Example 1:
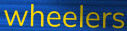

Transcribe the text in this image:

wheelers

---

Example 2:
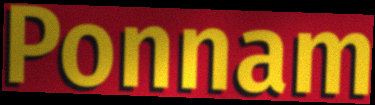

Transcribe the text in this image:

Ponnam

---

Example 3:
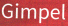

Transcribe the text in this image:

Gimpel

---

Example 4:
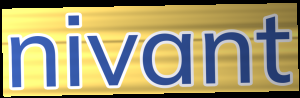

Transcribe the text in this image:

nivant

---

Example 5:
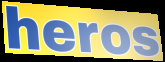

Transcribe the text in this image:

heros